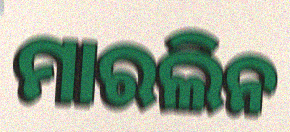
ମାରଲିନ